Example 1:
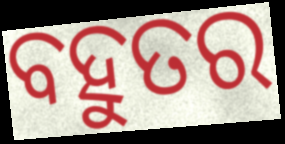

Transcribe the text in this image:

ବହୁତର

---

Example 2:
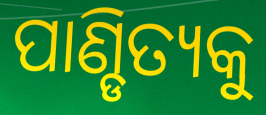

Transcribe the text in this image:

ପାଣ୍ଡିତ୍ୟକୁ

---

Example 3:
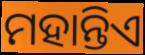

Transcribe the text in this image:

ମହାନ୍ତିଏ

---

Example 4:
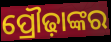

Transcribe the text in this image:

ପ୍ରୌଢ଼ାଙ୍କର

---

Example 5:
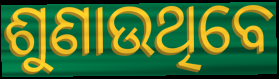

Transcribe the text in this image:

ଶୁଣାଉଥିବେ